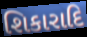
શિકારાદિ